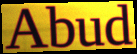
Abud